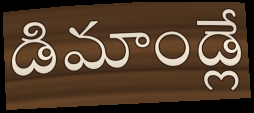
డిమాండ్లే